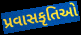
પ્રવાસકૃતિઓ